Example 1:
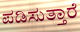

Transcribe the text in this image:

ಪಡಿಸುತ್ತಾರೆ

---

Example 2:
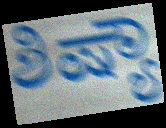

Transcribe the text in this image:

ಶಿಷ್ಯೌ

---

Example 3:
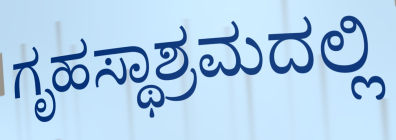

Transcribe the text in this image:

ಗೃಹಸ್ಥಾಶ್ರಮದಲ್ಲಿ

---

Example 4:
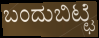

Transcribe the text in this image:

ಬಂದುಬಿಟ್ಟೆ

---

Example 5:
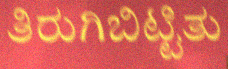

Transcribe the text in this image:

ತಿರುಗಿಬಿಟ್ಟಿತು